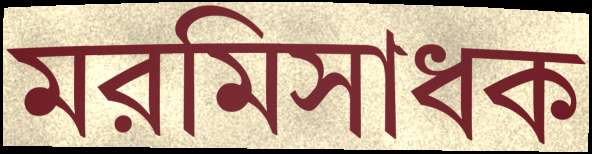
মরমিসাধক